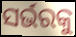
ସର୍ଭରକୁ